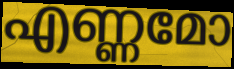
എണ്ണമോ